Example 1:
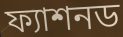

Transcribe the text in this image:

ফ্যাশনড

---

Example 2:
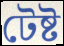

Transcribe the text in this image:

টেষ্ট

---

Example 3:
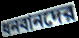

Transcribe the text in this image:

ধনবানদের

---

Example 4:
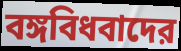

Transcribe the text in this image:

বঙ্গবিধবাদের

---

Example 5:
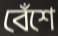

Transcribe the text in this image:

বেঁশে